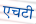
एचटी